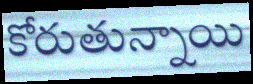
కోరుతున్నాయి